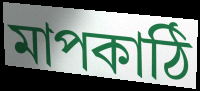
মাপকাঠি